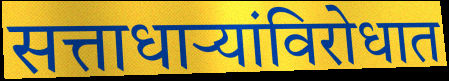
सत्ताधाऱ्यांविरोधात